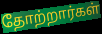
தோற்றார்கள்